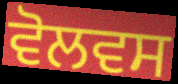
ਵੋਲਵਸ